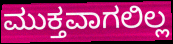
ಮುಕ್ತವಾಗಲಿಲ್ಲ